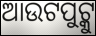
ଆଉଟପୁଟ୍କୁ